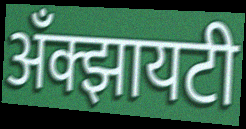
अँक्झायटी